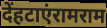
देंहटाएंरामराम